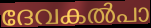
ദേവകൽപാ